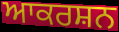
ਆਕਰਸ਼ਨ